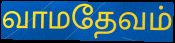
வாமதேவம்